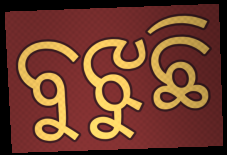
ବୁଝୁଛି